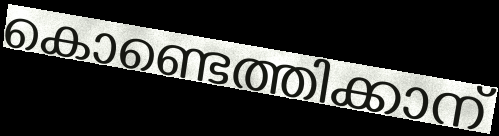
കൊണ്ടെത്തിക്കാന്